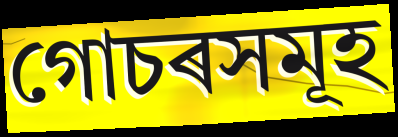
গোচৰসমূহ